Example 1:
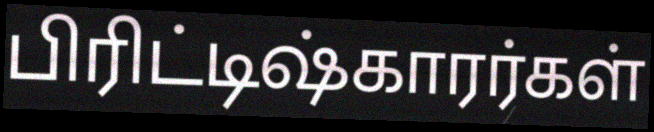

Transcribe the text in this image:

பிரிட்டிஷ்காரர்கள்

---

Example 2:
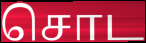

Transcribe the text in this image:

சொட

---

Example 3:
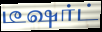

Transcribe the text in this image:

டீஷர்ட்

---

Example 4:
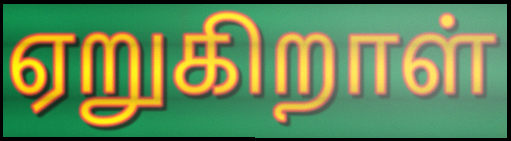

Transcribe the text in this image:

ஏறுகிறாள்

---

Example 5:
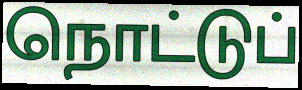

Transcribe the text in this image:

நொட்டுப்